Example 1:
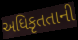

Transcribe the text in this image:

અધિકૃતતાની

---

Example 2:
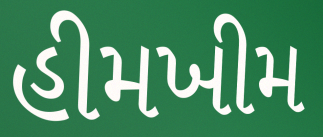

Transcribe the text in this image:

હીમખીમ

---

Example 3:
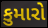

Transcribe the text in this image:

કુમારો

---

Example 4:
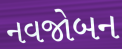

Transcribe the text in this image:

નવજોબન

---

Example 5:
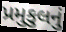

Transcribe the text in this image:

પ્રમુકુલનું